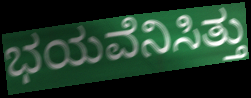
ಭಯವೆನಿಸಿತ್ತು